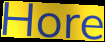
Hore